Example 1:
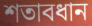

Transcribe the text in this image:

শতাবধান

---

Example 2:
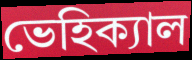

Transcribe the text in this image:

ভেহিক্যাল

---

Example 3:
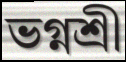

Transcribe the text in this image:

ভগ্নশ্রী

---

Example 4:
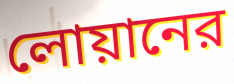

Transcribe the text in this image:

লোয়ানের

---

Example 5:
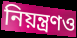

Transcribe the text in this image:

নিয়ন্ত্রণও